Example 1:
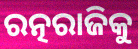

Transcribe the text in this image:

ରତ୍ନରାଜିକୁ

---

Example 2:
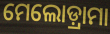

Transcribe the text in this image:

ମେଲୋଡ଼୍ରାମା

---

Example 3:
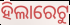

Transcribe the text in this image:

ହିଲାରେଟୁ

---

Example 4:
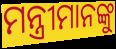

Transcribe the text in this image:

ମନ୍ତ୍ରୀମାନଙ୍କୁ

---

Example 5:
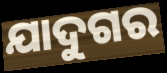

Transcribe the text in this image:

ଯାଦୁଗର